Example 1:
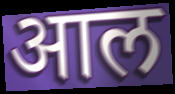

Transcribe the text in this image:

आल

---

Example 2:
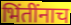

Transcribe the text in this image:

भिंतींनाच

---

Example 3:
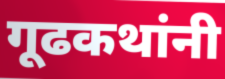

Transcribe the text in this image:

गूढकथांनी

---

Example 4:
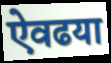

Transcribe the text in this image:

ऐवढया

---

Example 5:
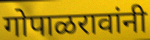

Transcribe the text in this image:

गोपाळरावांनी